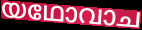
യഥോവാച